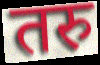
तरु